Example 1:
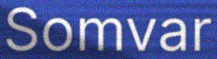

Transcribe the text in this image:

Somvar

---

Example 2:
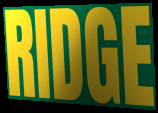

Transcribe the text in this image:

RIDGE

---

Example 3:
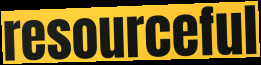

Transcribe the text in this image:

resourceful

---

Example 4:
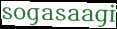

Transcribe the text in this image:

sogasaagi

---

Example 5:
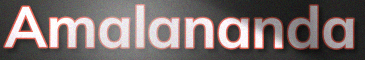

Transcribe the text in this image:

Amalananda